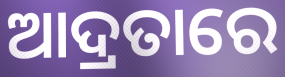
ଆଦ୍ରତାରେ